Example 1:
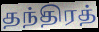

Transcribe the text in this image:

தந்திரத்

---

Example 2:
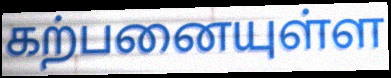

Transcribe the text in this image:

கற்பனையுள்ள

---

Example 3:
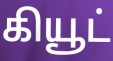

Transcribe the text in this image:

கியூட்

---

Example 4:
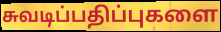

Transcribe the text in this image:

சுவடிப்பதிப்புகளை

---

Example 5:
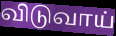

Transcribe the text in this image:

விடுவாய்